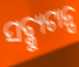
ସବ୍କ୍ୟୁଟାନ୍ସ